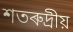
শতৰুদ্ৰীয়